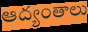
ఆద్యంతాలు